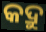
କଦ୍ରୁ